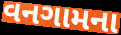
વનગામના